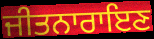
ਜੀਤਨਾਰਾਇਣ